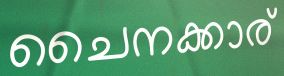
ചൈനക്കാര്